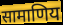
सामाणिय